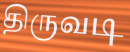
திருவடி